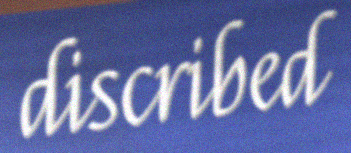
discribed